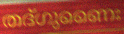
തദ്ഗുണൈഃ